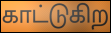
காட்டுகிற